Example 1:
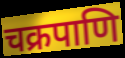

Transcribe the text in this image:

चक्रपाणि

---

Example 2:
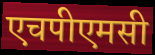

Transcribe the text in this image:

एचपीएमसी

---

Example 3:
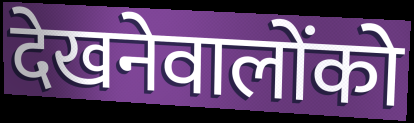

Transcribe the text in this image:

देखनेवालोंको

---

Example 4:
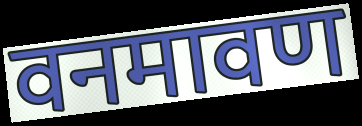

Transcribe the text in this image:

वनमावण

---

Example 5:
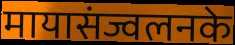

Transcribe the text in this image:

मायासंज्वलनके